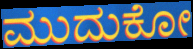
ಮುದುಕೋ